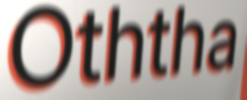
Oththa